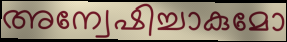
അന്വേഷിച്ചാകുമോ